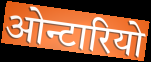
ओन्टारियो